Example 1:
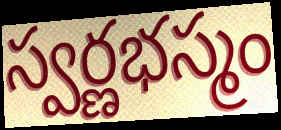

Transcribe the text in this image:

స్వర్ణభస్మం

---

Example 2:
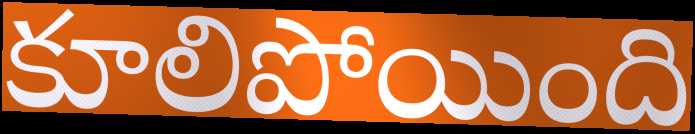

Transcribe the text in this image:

కూలిపోయింది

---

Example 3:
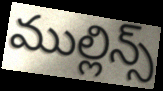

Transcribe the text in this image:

ముల్లిన్స్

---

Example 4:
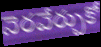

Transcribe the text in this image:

నెరవేర్చుకో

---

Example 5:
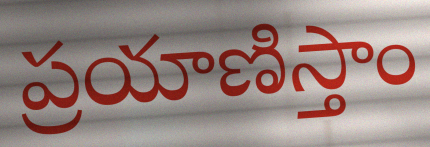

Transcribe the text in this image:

ప్రయాణిస్తాం